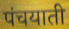
पंचयाती